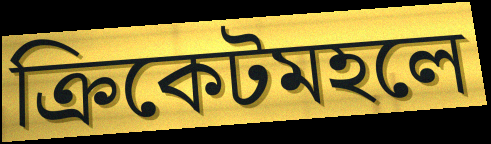
ক্রিকেটমহলে